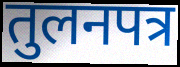
तुलनपत्र